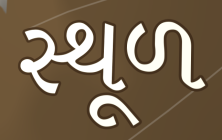
સ્થૂળ